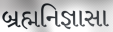
બ્રહ્મનિજ્ઞાસા